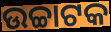
ଉଚ୍ଚାଟକ